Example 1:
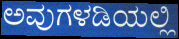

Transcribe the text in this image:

ಅವುಗಳಡಿಯಲ್ಲಿ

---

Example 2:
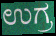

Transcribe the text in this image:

ಉಗ್ರ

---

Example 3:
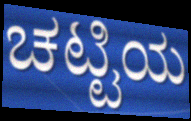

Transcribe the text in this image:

ಚಟ್ಟಿಯ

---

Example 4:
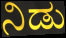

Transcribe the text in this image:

ನಿಡು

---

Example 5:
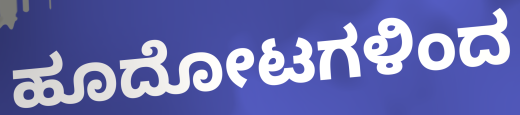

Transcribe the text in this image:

ಹೂದೋಟಗಳಿಂದ